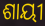
ଶାୟୀ